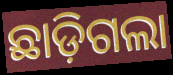
ଛାଡ଼ିଗଲା